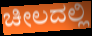
ಚೀಲದಲ್ಲಿ